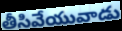
తీసివేయువాడు